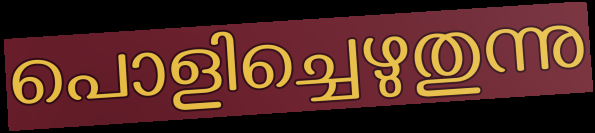
പൊളിച്ചെഴുതുന്നു